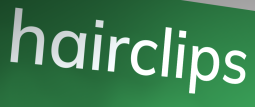
hairclips